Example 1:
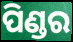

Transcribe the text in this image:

ପିଣ୍ଡର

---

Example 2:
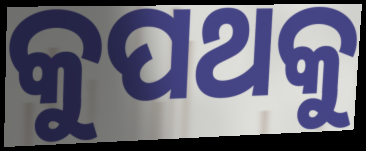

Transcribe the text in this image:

କୁପଥକୁ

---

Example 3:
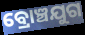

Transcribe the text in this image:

ବ୍ରୋଞ୍ଚଯୁଗ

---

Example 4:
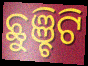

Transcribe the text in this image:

ଛୁଞ୍ଚିଟି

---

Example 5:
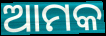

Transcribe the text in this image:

ଆମକ